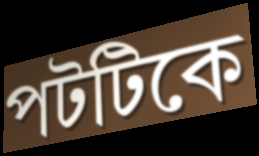
পটটিকে